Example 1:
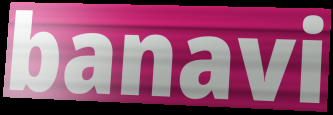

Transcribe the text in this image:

banavi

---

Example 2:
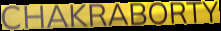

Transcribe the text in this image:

CHAKRABORTY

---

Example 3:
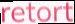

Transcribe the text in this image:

retort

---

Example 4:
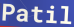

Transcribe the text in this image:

Patil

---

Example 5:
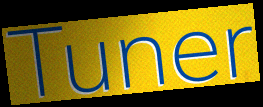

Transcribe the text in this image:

Tuner